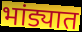
भांड्यात